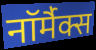
नॉर्मैक्स